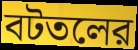
বটতলের